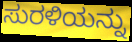
ಸುರಳಿಯನ್ನು